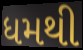
ધમથી